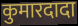
कुमारदादा